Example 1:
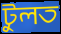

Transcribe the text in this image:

টুলত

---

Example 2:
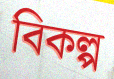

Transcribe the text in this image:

বিকল্প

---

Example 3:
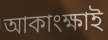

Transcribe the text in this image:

আকাংক্ষাই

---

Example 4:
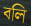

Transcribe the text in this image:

বলি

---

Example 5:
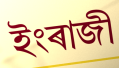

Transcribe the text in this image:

ইংৰাজী